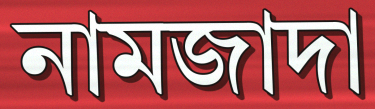
নামজাদা